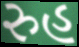
રુહ